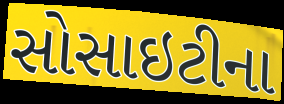
સોસાઇટીના